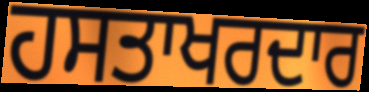
ਹਸਤਾਖਰਦਾਰ